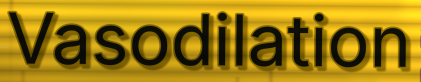
Vasodilation